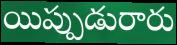
యిప్పుడురారు